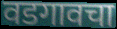
वडगावचा